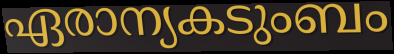
ഏരാന്യകടുംബം